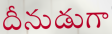
దీనుడుగా